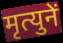
मृत्युनें